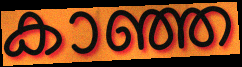
കാഞ്ഞ